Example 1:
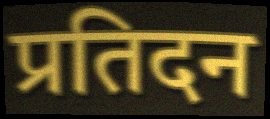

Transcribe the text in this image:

प्रतिदन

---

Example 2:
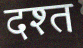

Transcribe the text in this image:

दश्त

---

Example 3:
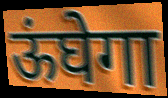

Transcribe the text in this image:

ऊंघेगा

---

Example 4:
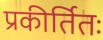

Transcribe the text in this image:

प्रकीर्तितः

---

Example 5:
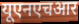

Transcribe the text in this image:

यूएनएचआर